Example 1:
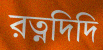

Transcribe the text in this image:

রত্নদিদি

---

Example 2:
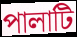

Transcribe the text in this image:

পালাটি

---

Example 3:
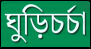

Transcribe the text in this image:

ঘুড়িচর্চা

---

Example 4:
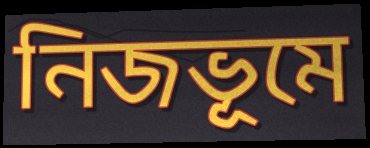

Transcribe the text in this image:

নিজভূমে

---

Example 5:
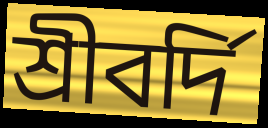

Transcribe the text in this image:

শ্রীবর্দি